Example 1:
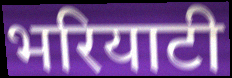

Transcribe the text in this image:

भरियाटी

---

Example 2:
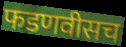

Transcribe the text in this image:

फडणवीसच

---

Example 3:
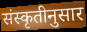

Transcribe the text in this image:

संस्कृतीनुसार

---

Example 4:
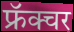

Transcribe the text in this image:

फ्रॅक्चर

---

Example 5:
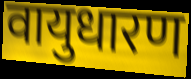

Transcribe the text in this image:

वायुधारण